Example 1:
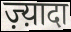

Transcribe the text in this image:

ज़्य़ादा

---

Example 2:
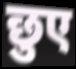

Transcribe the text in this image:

छुए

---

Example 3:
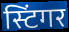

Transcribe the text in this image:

स्टिंगर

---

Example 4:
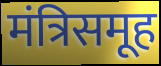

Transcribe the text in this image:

मंत्रिसमूह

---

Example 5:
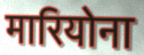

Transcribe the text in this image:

मारियोना